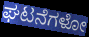
ಘಟನೆಗಳೋ